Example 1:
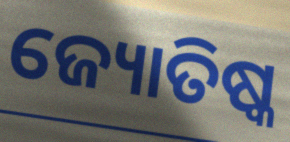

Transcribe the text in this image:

ଜ୍ୟୋତିଷ୍କ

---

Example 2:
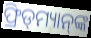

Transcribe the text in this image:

ଫ୍ରିଡ୍‌ମ୍ୟାନ୍‌ଙ୍କ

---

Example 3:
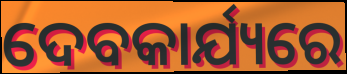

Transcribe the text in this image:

ଦେବକାର୍ଯ୍ୟରେ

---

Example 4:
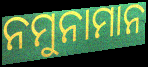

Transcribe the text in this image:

ନମୁନାମାନ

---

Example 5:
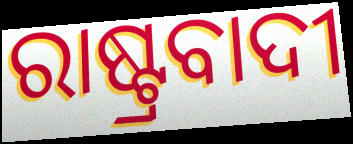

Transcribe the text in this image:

ରାଷ୍ଟ୍ରବାଦୀ